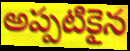
అప్పటికైన